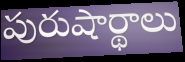
పురుషార్థాలు